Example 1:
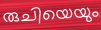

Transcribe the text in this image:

രുചിയെയും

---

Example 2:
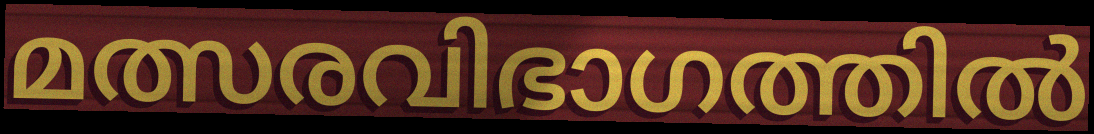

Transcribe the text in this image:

മത്സരവിഭാഗത്തിൽ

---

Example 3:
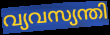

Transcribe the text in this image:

വ്യവസ്യന്തി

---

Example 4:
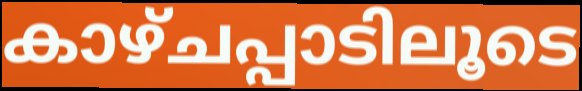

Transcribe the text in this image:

കാഴ്ചപ്പാടിലൂടെ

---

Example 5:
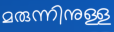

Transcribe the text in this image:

മരുന്നിനുള്ള